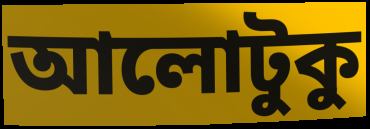
আলোটুকু